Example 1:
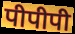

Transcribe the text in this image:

पीपीपी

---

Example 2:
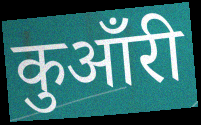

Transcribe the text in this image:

कुआँरी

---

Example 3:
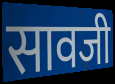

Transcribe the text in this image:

सावजी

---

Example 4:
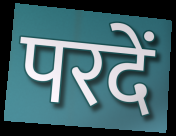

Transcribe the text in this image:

परदें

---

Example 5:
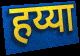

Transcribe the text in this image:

हय्या